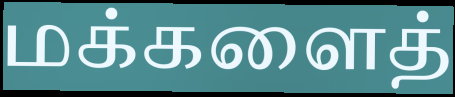
மக்களைத்